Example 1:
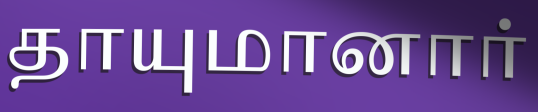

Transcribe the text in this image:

தாயுமானார்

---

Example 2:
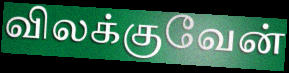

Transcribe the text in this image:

விலக்குவேன்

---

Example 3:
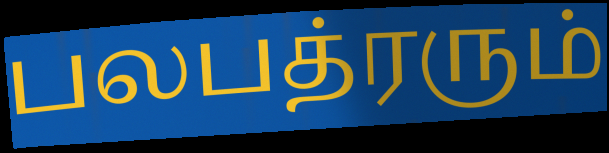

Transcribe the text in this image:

பலபத்ரரும்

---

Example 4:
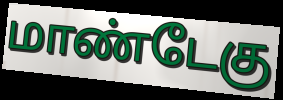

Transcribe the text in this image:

மாண்டேகு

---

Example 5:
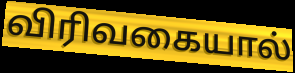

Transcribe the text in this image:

விரிவகையால்